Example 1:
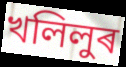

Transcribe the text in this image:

খলিলুৰ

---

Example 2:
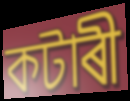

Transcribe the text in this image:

কটাৰী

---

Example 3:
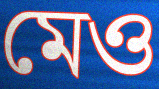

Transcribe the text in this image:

মেও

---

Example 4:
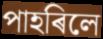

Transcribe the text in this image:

পাহৰিলে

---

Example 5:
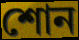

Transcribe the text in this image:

শোন